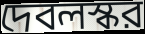
দেবলস্কর